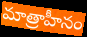
మాత్రాహీనం